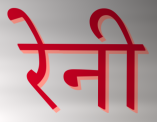
रेनी